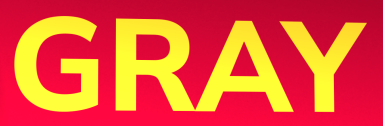
GRAY